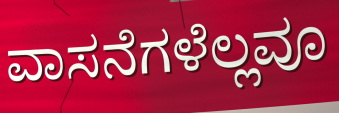
ವಾಸನೆಗಳೆಲ್ಲವೂ